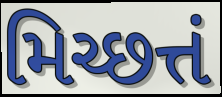
મિચ્છત્તં